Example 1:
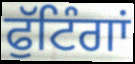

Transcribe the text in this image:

ਫੁੱਟਿੰਗਾਂ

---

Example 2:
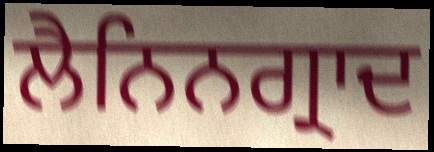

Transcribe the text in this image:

ਲੈਨਿਨਗ੍ਰਾਦ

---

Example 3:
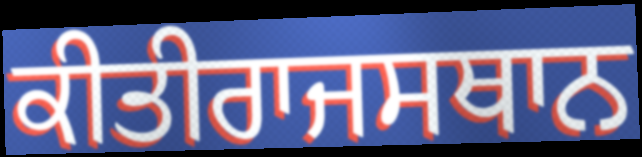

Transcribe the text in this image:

ਕੀਤੀਰਾਜਸਥਾਨ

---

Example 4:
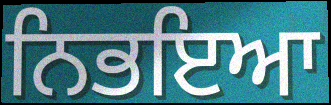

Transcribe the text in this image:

ਨਿਭਇਆ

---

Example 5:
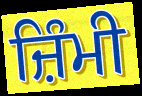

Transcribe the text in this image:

ਜ਼ਿੰਮੀ